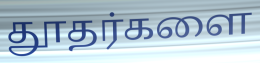
தூதர்களை